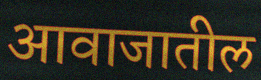
आवाजातील